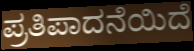
ಪ್ರತಿಪಾದನೆಯಿದೆ